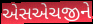
એસએચજીને